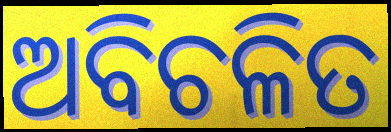
ଅବିଚଳିତ